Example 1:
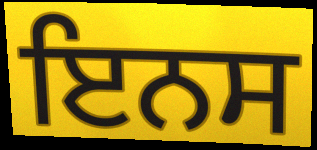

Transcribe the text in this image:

ਇਨਸ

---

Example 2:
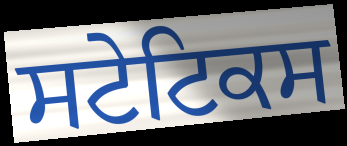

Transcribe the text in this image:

ਸਟੇਟਿਕਸ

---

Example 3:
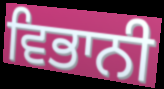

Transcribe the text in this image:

ਵਿਭਾਨੀ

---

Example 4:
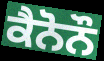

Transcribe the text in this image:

ਕੈਨੋਨੌ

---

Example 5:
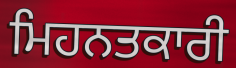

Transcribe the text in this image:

ਮਿਹਨਤਕਾਰੀ